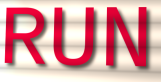
RUN